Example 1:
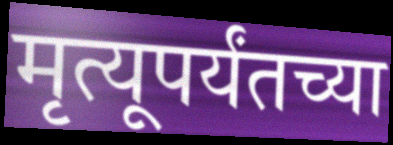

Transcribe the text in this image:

मृत्यूपर्यंतच्या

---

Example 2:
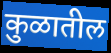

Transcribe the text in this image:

कुळातील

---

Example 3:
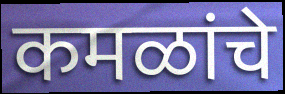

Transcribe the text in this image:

कमळांचे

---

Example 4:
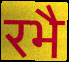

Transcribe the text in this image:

रभै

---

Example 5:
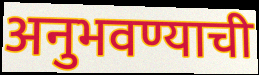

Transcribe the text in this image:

अनुभवण्याची